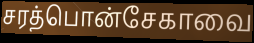
சரத்பொன்சேகாவை